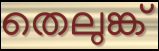
തെലുങ്ക്